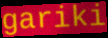
gariki